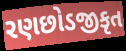
રણછોડજીકૃત